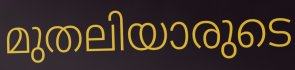
മുതലിയാരുടെ